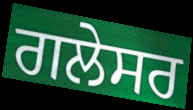
ਗਲੇਸਰ